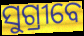
ସୁଗ୍ରୀବେ